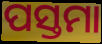
ପସ୍ତମା